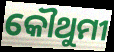
କୌଥୁମୀ